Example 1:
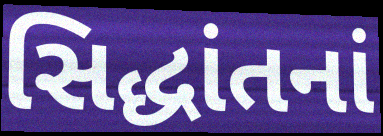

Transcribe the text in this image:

સિદ્ધાંતનાં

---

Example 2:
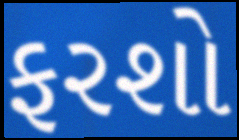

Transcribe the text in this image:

ફરશો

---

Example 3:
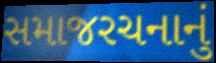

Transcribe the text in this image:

સમાજરચનાનું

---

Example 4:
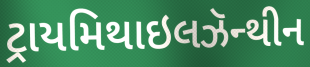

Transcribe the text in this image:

ટ્રાયમિથાઇલઝૅન્થીન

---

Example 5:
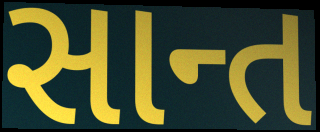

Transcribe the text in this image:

સાન્ત